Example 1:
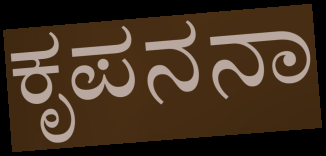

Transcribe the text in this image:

ಕೃಪನನಾ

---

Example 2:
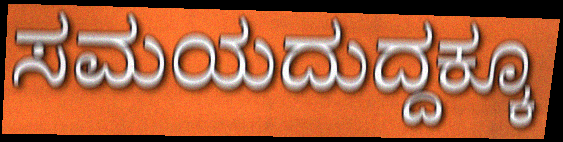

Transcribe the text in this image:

ಸಮಯದುದ್ದಕ್ಕೂ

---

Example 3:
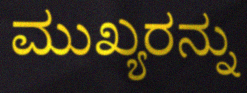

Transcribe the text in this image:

ಮುಖ್ಯರನ್ನು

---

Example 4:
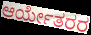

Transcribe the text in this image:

ಆರ್ಯೇತರರ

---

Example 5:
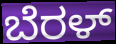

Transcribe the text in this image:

ಬೆರಳ್